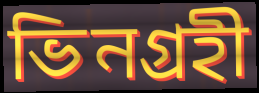
ভিনগ্রহী